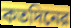
কতদিনের